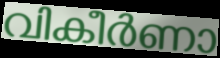
വികീർണാ